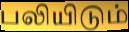
பலியிடும்